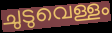
ചുടുവെള്ളം